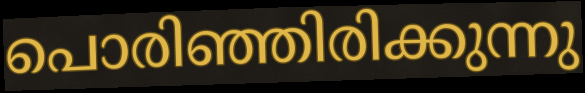
പൊരിഞ്ഞിരിക്കുന്നു